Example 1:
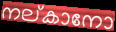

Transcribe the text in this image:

നല്കാനോ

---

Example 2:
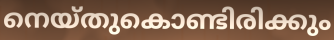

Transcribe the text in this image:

നെയ്തുകൊണ്ടിരിക്കും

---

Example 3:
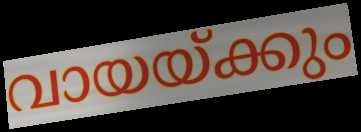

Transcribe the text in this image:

വായയ്ക്കും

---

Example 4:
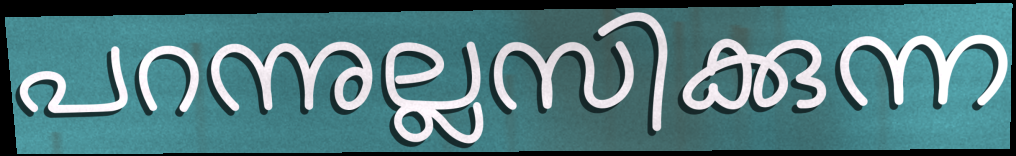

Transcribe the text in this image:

പറന്നുല്ലസിക്കുന്ന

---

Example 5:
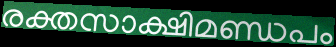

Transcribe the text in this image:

രക്തസാക്ഷിമണ്ഡപം